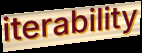
iterability